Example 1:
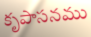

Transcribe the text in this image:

కృపాసనము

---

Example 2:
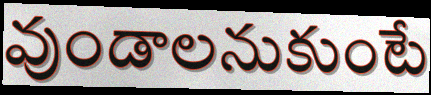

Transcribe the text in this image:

వుండాలనుకుంటే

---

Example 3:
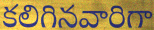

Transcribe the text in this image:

కలిగినవారిగా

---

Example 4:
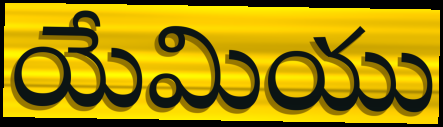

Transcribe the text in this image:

యేమియు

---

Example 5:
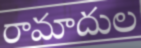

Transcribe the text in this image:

రామాదుల